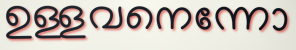
ഉള്ളവനെന്നോ